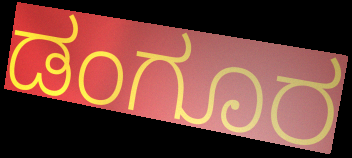
ಡಂಗೂರ